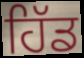
ਹਿੱਡ